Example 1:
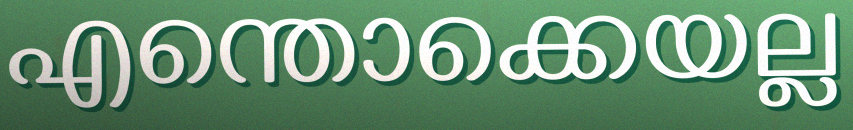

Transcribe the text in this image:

എന്തൊക്കെയല്ല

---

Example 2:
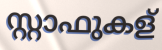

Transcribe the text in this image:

സ്റ്റാഫുകള്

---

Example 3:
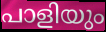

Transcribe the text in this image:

പാളിയും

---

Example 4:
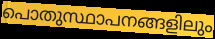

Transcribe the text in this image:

പൊതുസ്ഥാപനങ്ങളിലും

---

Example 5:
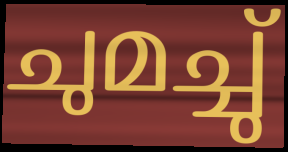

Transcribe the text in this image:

ചുമച്ചു്